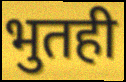
भुतही